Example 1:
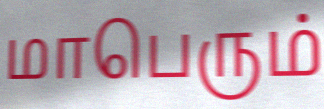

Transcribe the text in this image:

மாபெரும்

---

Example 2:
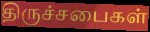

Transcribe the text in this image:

திருச்சபைகள்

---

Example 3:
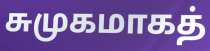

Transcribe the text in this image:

சுமுகமாகத்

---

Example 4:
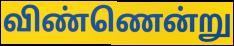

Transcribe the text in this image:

விண்ணென்று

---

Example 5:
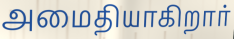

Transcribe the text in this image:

அமைதியாகிறார்